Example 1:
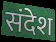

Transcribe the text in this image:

संदेश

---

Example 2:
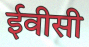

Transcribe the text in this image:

ईवीसी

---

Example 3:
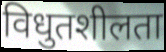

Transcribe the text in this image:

विधुतशीलता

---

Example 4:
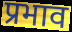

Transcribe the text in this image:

प्रभाव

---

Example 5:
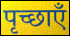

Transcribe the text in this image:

पृच्छाएँ